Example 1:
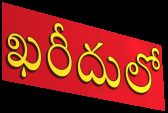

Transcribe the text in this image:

ఖరీదులో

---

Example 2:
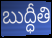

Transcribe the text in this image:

బుద్ధీతి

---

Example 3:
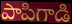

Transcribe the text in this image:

పాపిగాడి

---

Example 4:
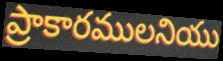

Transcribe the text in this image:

ప్రాకారములనియు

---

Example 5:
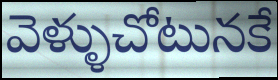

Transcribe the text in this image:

వెళ్ళుచోటునకే